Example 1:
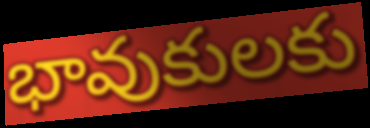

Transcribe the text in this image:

భావుకులకు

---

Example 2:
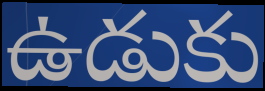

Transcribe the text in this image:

ఉడుకు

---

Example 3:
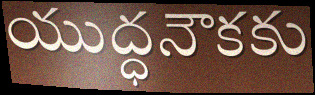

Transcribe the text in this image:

యుద్ధనౌకకు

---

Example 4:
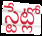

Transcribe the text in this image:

స్టేట్లో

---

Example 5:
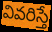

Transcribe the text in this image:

వివరిస్తే